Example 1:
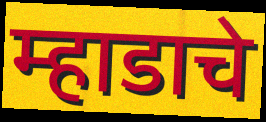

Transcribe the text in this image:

म्हाडाचे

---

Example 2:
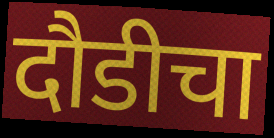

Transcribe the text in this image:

दौडीचा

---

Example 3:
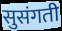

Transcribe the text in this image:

सुसंगती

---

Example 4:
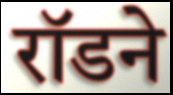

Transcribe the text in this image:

रॉडने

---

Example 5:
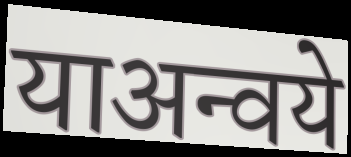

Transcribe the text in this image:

याअन्वये